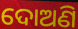
ଦୋଅଣି